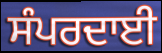
ਸੰਪਰਦਾਈ